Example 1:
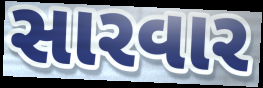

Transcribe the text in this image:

સારવાર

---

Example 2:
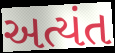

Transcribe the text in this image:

અત્યંત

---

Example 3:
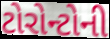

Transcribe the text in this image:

ટોરોન્ટોની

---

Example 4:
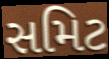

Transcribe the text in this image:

સમિટ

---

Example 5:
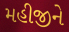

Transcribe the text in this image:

મહીજીને